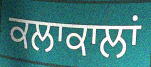
ਕਲਾਕਾਲਾਂ